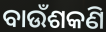
ବାଉଁଶକଣି